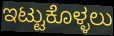
ಇಟ್ಟುಕೊಳ್ಳಲು